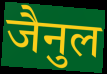
जैनुल